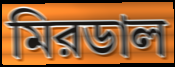
মিরডাল